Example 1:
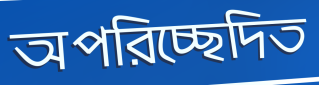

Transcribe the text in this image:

অপরিচ্ছেদিত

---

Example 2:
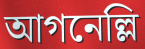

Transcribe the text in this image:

আগনেল্লি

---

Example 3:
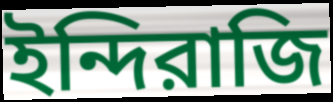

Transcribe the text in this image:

ইন্দিরাজি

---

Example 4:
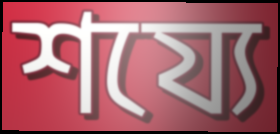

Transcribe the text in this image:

শয্যে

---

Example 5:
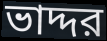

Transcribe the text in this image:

ভাদ্দর